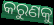
କରୁଣକୁ